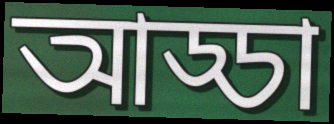
আড্ডা